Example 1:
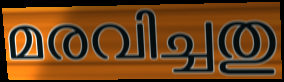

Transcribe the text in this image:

മരവിച്ചതു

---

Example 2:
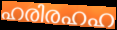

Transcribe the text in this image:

ഹരിരഹഹ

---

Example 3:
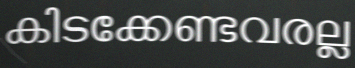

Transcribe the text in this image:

കിടക്കേണ്ടവരല്ല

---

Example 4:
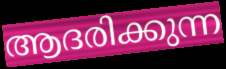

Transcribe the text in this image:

ആദരിക്കുന്ന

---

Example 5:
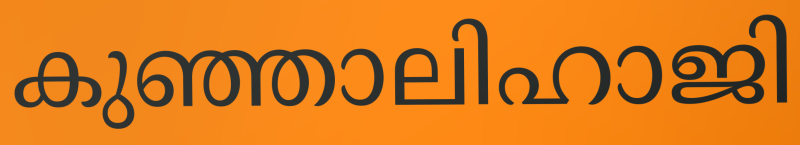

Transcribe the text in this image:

കുഞ്ഞാലിഹാജി